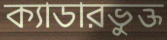
ক্যাডারভুক্ত